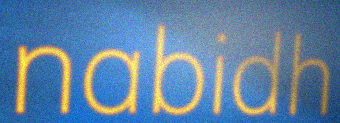
nabidh